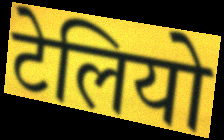
टेलियो